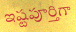
ఇష్టపూర్తిగా